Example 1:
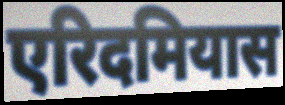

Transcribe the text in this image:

एरिदमियास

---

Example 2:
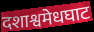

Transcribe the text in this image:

दशाश्वमेधघाट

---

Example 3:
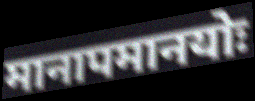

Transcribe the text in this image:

मानापमानयोः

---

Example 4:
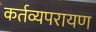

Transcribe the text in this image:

कर्तव्यपरायण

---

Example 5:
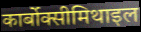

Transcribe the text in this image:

कार्बोक्सीमिथाइल